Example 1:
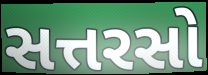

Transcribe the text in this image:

સત્તરસો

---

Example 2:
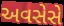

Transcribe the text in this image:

અવસેસે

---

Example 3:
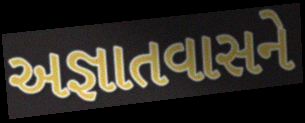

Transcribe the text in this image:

અજ્ઞાતવાસને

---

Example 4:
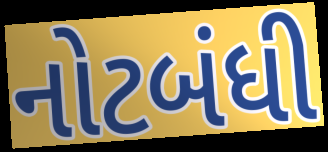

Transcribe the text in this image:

નોટબંધી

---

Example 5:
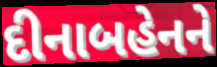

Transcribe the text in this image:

દીનાબહેનને